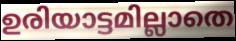
ഉരിയാട്ടമില്ലാതെ